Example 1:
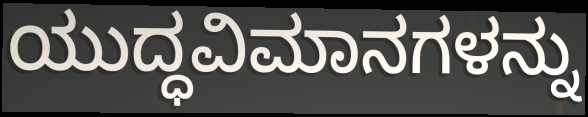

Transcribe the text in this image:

ಯುದ್ಧವಿಮಾನಗಳನ್ನು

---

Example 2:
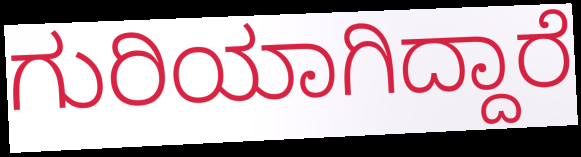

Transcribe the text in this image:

ಗುರಿಯಾಗಿದ್ದಾರೆ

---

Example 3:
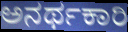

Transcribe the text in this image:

ಅನರ್ಥಕಾರಿ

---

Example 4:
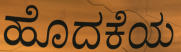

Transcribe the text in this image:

ಹೊದಕೆಯ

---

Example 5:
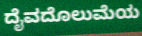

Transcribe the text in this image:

ದೈವದೊಲುಮೆಯ